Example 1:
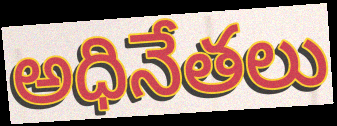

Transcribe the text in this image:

అధినేతలు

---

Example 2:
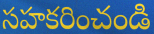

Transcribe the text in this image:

సహకరించండి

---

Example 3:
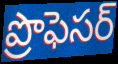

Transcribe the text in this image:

ప్రొఫెసర్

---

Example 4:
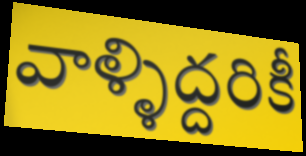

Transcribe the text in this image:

వాళ్ళిద్దరికీ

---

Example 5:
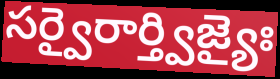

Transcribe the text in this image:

సర్వైరార్త్విజ్యైః